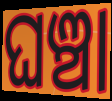
ଘଞ୍ଚା